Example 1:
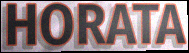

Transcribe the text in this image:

HORATA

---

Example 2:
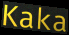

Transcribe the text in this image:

Kaka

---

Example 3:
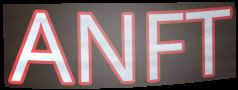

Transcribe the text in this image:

ANFT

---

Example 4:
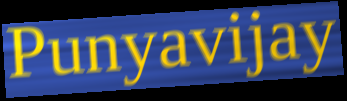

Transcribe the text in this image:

Punyavijay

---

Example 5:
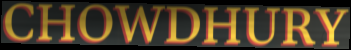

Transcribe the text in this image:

CHOWDHURY